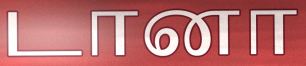
டானா